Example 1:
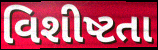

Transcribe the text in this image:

વિશીષ્ટતા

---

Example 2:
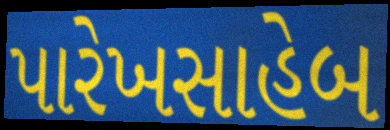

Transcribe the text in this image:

પારેખસાહેબ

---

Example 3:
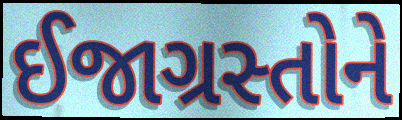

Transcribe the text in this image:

ઈજાગ્રસ્તોને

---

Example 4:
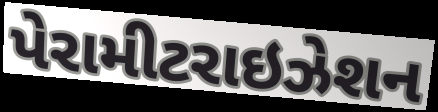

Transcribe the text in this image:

પેરામીટરાઇઝેશન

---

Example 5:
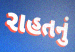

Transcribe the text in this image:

રાહતનું